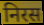
निरस